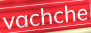
vachche